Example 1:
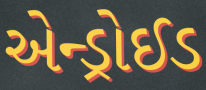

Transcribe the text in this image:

એન્ડ્રોઈડ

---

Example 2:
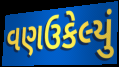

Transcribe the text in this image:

વણઉકેલ્યું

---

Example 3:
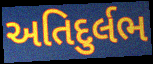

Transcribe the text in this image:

અતિદુર્લભ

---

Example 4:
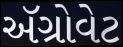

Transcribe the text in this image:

ઍગ્રોવેટ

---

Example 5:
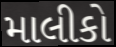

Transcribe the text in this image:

માલીકો